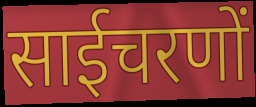
साईचरणों